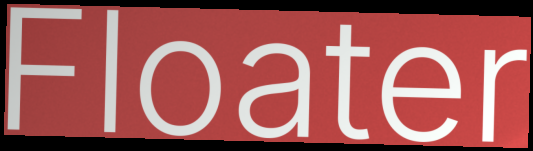
Floater